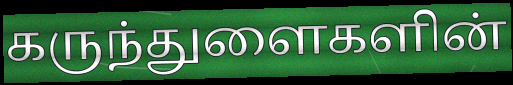
கருந்துளைகளின்